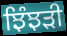
ਝਿੰਝੜੀ